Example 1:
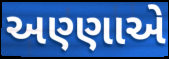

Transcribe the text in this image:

અણ્ણાએ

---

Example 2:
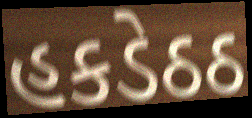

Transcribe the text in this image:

હકડેઠઠ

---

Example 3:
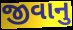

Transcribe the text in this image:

જીવાનુ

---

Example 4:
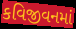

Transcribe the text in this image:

કવિજીવનમાં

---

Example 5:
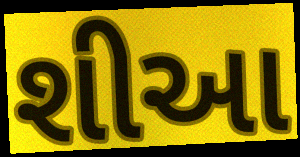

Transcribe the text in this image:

શીઆ